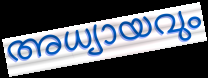
അധ്യായവും